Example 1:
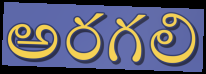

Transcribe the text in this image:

అరగలి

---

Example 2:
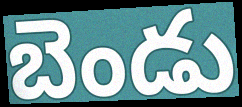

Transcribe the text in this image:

బెండు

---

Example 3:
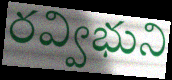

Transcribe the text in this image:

రవ్విభుని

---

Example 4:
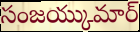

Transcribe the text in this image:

సంజయ్కుమార్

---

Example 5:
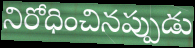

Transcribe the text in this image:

నిరోధించినప్పుడు